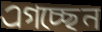
এগচ্ছেন